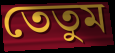
তেতুম